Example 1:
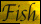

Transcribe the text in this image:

Fish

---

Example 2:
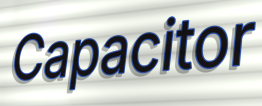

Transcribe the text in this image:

Capacitor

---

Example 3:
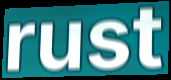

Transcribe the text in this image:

rust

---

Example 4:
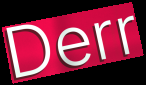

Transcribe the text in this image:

Derr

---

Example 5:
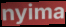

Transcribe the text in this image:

nyima